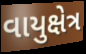
વાયુક્ષેત્ર